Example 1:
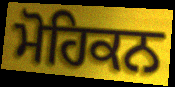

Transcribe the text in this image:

ਮੋਹਿਕਨ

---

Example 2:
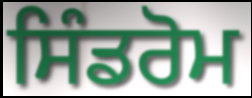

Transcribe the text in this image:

ਸਿੰਡਰੋਮ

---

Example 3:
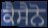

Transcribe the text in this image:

ਕੈਸੈਨੋ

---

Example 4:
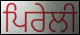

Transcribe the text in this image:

ਪਿਰੇਲੀ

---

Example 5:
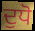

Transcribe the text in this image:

ਦੁਧੋ